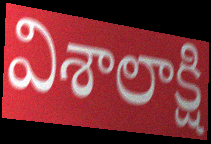
విశాలాక్షి